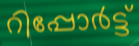
റിപ്പോർട്ട്